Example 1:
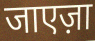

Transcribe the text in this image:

जाएज़ा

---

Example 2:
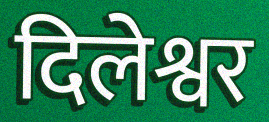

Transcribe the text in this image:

दिलेश्वर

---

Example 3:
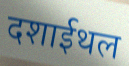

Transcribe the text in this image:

दशाईथल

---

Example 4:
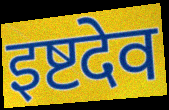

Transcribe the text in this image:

इष्टदेव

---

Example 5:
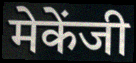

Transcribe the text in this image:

मेकेंजी